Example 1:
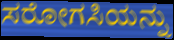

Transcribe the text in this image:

ಸರೋಗಸಿಯನ್ನು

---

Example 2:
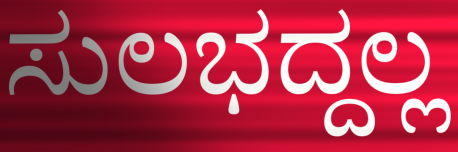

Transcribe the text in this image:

ಸುಲಭದ್ದಲ್ಲ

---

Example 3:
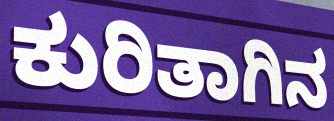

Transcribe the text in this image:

ಕುರಿತಾಗಿನ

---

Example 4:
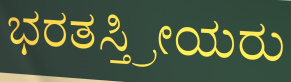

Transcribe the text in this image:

ಭರತಸ್ತ್ರೀಯರು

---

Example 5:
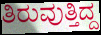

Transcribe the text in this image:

ತಿರುವುತ್ತಿದ್ದ